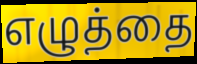
எழுத்தை